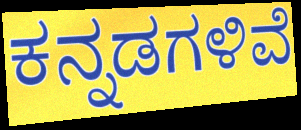
ಕನ್ನಡಗಳಿವೆ